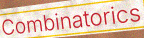
Combinatorics